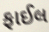
ફાઈલ